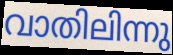
വാതിലിന്നു